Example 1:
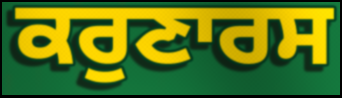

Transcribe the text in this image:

ਕਰੁਣਾਰਸ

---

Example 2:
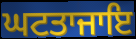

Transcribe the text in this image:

ਘਟਤਾਜਾਇ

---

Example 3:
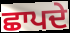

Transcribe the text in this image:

ਛਾਪਦੇ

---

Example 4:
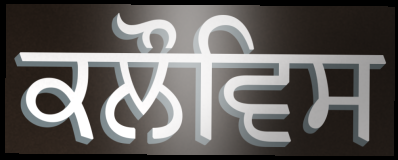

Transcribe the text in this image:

ਕਲੌਵਿਸ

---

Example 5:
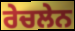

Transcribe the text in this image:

ਰੇਚਲੇਨ